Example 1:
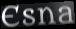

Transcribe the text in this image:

Esna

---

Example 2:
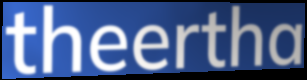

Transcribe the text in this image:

theertha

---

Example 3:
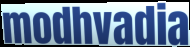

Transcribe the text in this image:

modhvadia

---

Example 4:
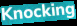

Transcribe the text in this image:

Knocking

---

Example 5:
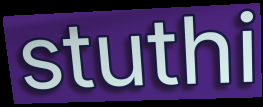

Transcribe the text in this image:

stuthi